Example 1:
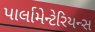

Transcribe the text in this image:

પાર્લામેન્ટેરિયન્સ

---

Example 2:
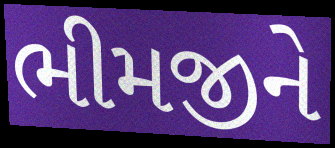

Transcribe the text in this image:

ભીમજીને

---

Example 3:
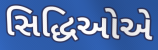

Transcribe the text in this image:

સિદ્ધિઓએ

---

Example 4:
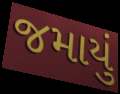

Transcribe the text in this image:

જમાયું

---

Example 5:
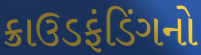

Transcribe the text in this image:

ક્રાઉડફંડિંગનો